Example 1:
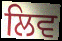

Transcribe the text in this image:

ਲਿਵ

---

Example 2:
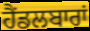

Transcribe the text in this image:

ਹੈਂਡਲਬਾਰਾਂ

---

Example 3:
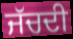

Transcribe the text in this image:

ਜੱਚਦੀ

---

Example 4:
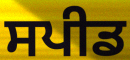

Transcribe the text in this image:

ਸਪੀਡ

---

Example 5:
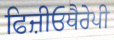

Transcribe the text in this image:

ਫਿਜ਼ੀਓਥੈਰੇਪੀ